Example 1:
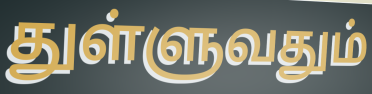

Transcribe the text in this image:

துள்ளுவதும்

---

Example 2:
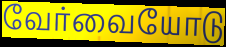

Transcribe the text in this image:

வேர்வையோடு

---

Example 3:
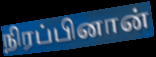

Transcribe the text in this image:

நிரப்பினான்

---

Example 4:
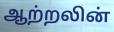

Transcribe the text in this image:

ஆற்றலின்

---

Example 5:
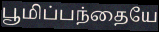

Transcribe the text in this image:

பூமிப்பந்தையே